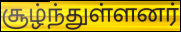
சூழ்ந்துள்ளனர்